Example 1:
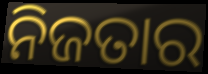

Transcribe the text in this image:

ନିଜତାର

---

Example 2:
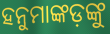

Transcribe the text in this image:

ହନୁମାଙ୍କଡ଼ଙ୍କୁ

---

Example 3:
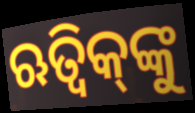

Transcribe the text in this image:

ଋତ୍ୱିକ୍‌ଙ୍କୁ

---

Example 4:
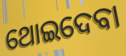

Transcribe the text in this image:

ଥୋଇଦେବା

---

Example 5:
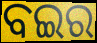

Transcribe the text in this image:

ବଇର